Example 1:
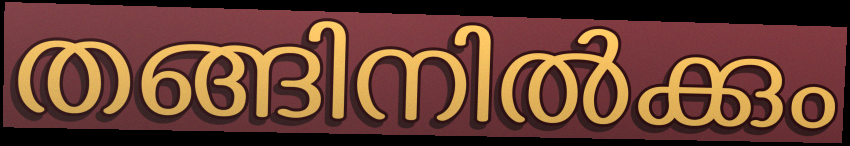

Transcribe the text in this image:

തങ്ങിനിൽക്കും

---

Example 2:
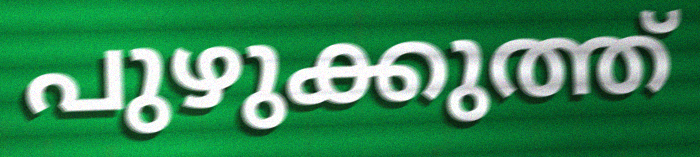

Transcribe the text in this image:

പുഴുക്കുത്ത്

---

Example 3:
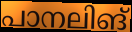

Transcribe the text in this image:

പാനലിങ്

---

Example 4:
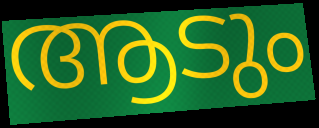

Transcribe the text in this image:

ആടും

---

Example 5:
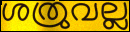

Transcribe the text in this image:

ശത്രുവല്ല